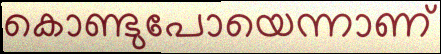
കൊണ്ടുപോയെന്നാണ്